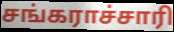
சங்கராச்சாரி